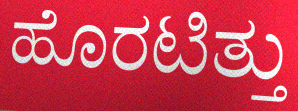
ಹೊರಟಿತ್ತು